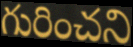
గురించని